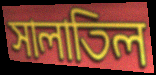
সালাতিল